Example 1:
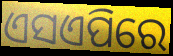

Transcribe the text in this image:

ଏସଏପିରେ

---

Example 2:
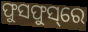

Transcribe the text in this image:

ଫୁସଫୁସ୍‌ରେ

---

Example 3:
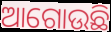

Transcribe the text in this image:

ଆଗୋଉଛି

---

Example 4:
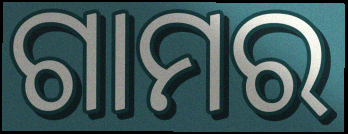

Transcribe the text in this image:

ଗାମର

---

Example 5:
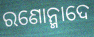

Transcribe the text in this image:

ରଣୋନ୍ମାଦେ